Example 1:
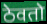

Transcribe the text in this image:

ठेवतो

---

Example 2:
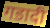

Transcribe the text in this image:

गडादी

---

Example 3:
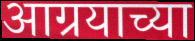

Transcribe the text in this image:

आग्रयाच्या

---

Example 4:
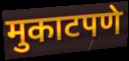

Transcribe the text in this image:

मुकाटपणे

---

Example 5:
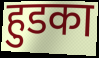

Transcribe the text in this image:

हुडका